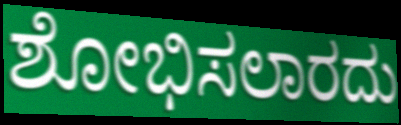
ಶೋಭಿಸಲಾರದು